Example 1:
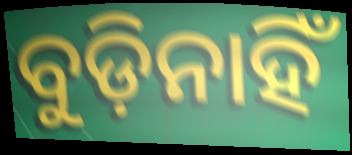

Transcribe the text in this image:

ବୁଡ଼ିନାହିଁ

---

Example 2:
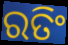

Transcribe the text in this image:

ରତିଂ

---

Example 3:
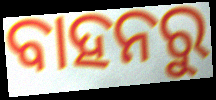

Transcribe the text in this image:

ବାହନରୁ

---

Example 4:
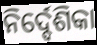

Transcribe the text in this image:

ନିର୍ଦ୍ଦେଶିକା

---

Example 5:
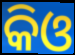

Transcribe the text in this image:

କିଓ